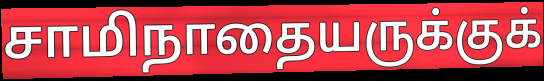
சாமிநாதையருக்குக்